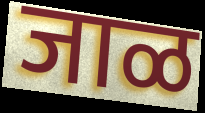
जाळ